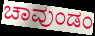
ಚಾವುಂಡಂ